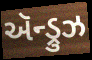
ઍન્ડ્રુઝ